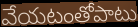
వేయటంతోపాటు